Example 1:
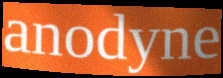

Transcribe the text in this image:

anodyne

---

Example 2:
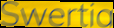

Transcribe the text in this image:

Swertia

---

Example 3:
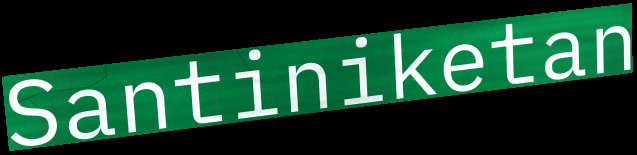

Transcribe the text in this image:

Santiniketan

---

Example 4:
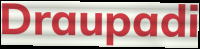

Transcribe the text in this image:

Draupadi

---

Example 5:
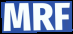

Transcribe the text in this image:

MRF